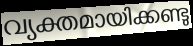
വ്യക്തമായിക്കണ്ടു